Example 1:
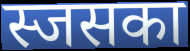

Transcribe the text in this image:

स्जसका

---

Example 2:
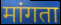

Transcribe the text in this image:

मांगता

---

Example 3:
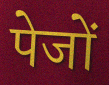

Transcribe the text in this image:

पेजों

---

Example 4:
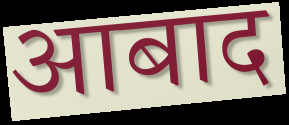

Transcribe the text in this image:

आबाद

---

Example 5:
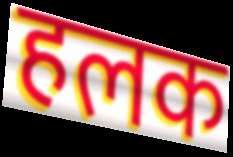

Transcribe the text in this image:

हलक